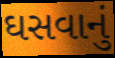
ઘસવાનું